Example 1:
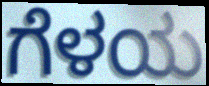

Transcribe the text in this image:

ಗೆಳಯ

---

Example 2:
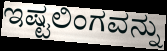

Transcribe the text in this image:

ಇಷ್ಟಲಿಂಗವನ್ನು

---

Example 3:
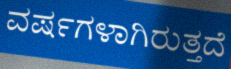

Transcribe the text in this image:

ವರ್ಷಗಳಾಗಿರುತ್ತದೆ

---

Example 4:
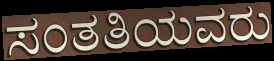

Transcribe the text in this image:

ಸಂತತಿಯವರು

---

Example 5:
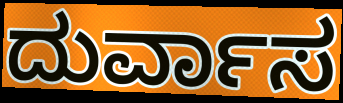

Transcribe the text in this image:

ದುರ್ವಾಸ